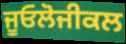
ਜੂਓਲੋਜੀਕਲ